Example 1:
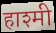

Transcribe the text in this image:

हाश्मी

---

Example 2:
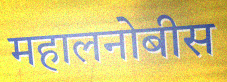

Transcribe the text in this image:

महालनोबीस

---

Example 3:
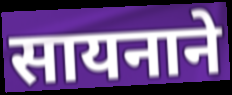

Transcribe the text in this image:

सायनाने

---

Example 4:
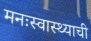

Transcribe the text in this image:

मनःस्वास्थ्याची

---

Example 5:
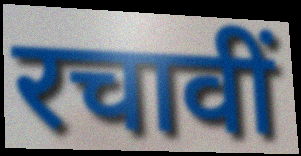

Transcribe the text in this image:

रचावीं